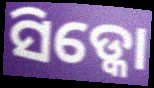
ସିଡ୍କୋ